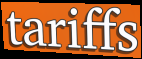
tariffs